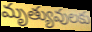
మృత్యువులకు